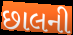
છાલની